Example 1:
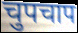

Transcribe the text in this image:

चुपचाप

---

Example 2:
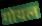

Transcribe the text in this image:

गोयल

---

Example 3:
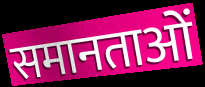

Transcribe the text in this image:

समानताओं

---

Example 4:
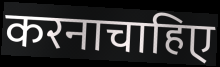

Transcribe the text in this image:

करनाचाहिए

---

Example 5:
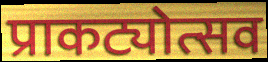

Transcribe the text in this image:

प्राकट्योत्सव